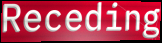
Receding